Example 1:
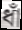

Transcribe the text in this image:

ধাঁ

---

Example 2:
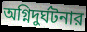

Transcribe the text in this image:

অগ্নিদুর্ঘটনার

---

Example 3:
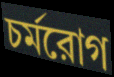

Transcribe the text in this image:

চর্মরোগ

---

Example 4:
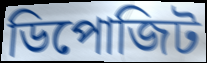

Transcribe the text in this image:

ডিপোজিট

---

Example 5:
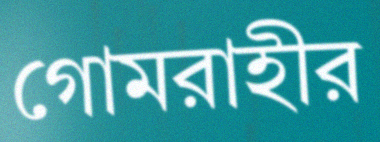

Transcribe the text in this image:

গোমরাহীর